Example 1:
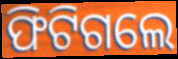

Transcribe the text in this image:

ଫିଟିଗଲେ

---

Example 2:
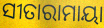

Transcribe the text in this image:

ସୀତାରାମାୟା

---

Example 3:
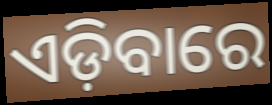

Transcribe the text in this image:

ଏଡ଼ିବାରେ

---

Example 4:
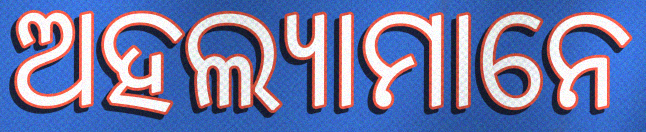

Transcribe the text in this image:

ଅହଲ୍ୟାମାନେ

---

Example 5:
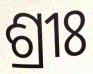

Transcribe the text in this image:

ଶ୍ରୀଃ